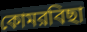
কোমরবিছা